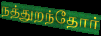
நத்துறந்தோர்